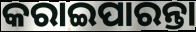
କରାଇପାରନ୍ତା